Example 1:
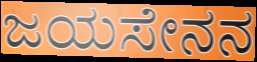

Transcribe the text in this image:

ಜಯಸೇನನ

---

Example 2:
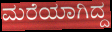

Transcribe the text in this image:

ಮರೆಯಾಗಿದ್ದ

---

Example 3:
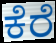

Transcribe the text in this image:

ಕೆರೆ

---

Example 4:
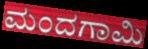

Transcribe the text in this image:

ಮಂದಗಾಮಿ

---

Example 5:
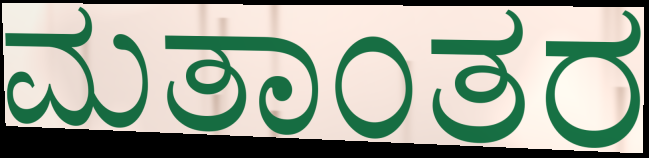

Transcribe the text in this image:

ಮತಾಂತರ